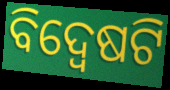
ବିଦ୍ୱେଷଟି